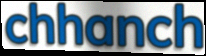
chhanch